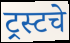
ट्रस्टचे